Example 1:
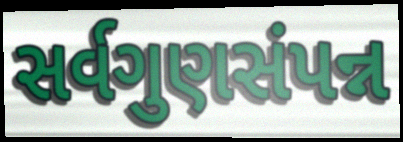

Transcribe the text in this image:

સર્વગુણસંપન્ન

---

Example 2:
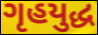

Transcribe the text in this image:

ગૃહયુદ્ધ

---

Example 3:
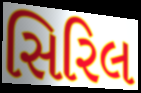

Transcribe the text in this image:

સિરિલ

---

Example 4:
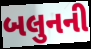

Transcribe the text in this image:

બલુનની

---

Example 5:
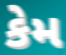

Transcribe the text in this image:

કેમ